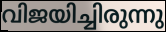
വിജയിച്ചിരുന്നു